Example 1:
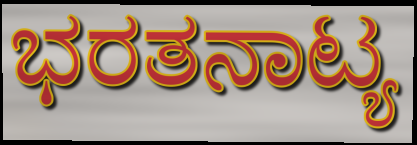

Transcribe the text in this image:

ಭರತನಾಟ್ಯ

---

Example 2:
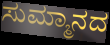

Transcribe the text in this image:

ಸುಮ್ಮಾನದ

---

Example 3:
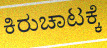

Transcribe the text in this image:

ಕಿರುಚಾಟಕ್ಕೆ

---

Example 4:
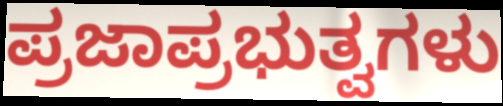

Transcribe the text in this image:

ಪ್ರಜಾಪ್ರಭುತ್ವಗಳು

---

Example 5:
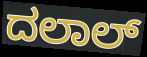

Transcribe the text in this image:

ದಲಾಲ್